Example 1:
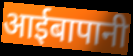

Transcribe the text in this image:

आईबापानी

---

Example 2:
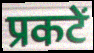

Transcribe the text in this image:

प्रकटें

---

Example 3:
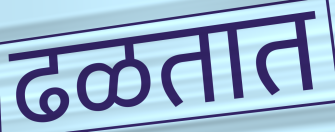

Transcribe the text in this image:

ढळतात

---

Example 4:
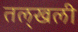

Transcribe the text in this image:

तल्खली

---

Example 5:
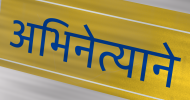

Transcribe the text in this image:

अभिनेत्याने